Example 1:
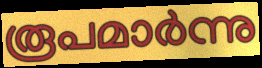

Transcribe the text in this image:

രൂപമാർന്നു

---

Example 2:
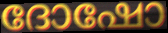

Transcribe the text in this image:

ദോഷോ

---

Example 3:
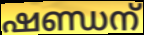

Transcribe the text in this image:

ഷണ്ഡന്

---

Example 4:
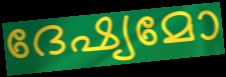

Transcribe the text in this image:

ദേഷ്യമോ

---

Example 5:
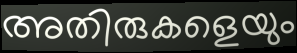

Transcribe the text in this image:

അതിരുകളെയും